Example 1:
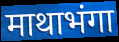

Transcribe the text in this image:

माथाभंगा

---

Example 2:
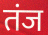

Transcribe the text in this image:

तंज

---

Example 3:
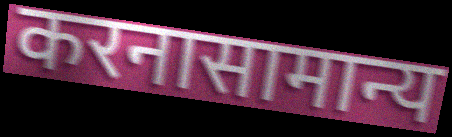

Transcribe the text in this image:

करनासामान्य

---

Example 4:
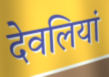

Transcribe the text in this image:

देवलियां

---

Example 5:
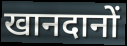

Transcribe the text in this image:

खानदानों